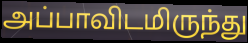
அப்பாவிடமிருந்து